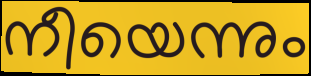
നീയെന്നും